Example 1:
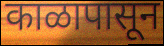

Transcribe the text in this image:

काळापासून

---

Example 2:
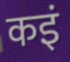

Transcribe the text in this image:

कइं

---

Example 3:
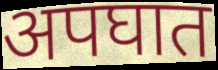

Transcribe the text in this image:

अपघात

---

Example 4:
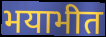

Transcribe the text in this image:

भयाभीत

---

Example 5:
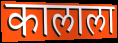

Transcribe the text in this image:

कालाला